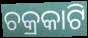
ଚକ୍ରକାଟି